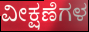
ವೀಕ್ಷಣೆಗಳ